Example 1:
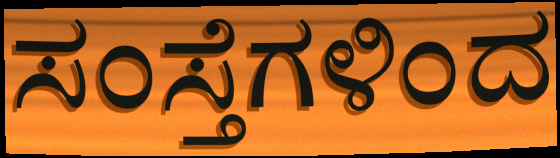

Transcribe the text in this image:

ಸಂಸ್ತೆಗಳಿಂದ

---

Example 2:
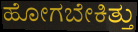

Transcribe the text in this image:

ಹೋಗಬೇಕಿತ್ತು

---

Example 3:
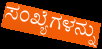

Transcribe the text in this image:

ಸಂಖ್ಯೆಗಳನ್ನು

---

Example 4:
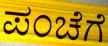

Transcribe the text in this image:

ಪಂಚೆಗೆ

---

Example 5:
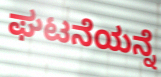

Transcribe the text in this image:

ಘಟನೆಯನ್ನೆ